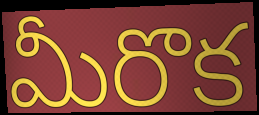
మీరొక